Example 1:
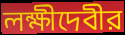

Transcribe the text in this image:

লক্ষীদেবীর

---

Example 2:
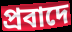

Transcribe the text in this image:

প্রবাদে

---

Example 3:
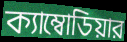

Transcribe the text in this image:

ক্যাম্বোডিয়ার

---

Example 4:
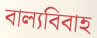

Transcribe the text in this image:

বাল্যবিবাহ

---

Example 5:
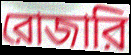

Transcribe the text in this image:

রোজারি